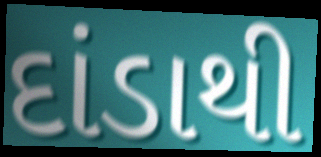
દાંડાથી